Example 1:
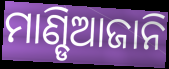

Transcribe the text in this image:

ମାଣ୍ଡିଆଜାନି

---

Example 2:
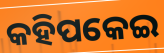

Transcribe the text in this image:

କହିପକେଇ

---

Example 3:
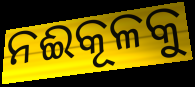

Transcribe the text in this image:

ନଈକୂଳକୁ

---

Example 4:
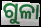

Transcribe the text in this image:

ଗୁଳା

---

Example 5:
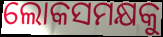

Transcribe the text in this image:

ଲୋକସମକ୍ଷକୁ